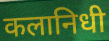
कलानिधी